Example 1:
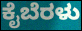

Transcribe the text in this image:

ಕೈಬೆರಳು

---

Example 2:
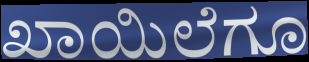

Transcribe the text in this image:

ಖಾಯಿಲೆಗೂ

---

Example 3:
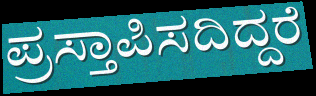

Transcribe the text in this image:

ಪ್ರಸ್ತಾಪಿಸದಿದ್ದರೆ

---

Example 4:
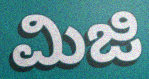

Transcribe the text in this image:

ಮಿಜಿ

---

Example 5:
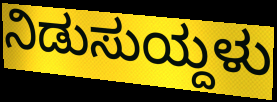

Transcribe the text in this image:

ನಿಡುಸುಯ್ದಳು